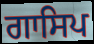
ਗਾਸਿਪ